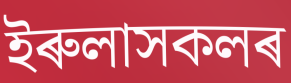
ইৰুলাসকলৰ